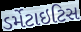
ડર્મેટાઇટિસ